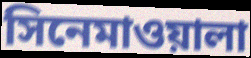
সিনেমাওয়ালা